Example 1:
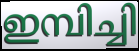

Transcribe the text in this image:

ഇമ്പിച്ചി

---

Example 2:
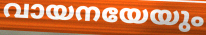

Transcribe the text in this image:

വായനയേയും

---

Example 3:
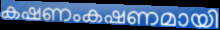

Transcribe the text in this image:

കഷണംകഷണമായി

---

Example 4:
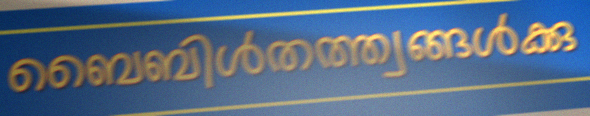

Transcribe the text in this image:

ബൈബിൾതത്ത്വങ്ങൾക്കു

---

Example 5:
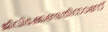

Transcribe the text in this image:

ജീവിക്കേണ്ടതിനാണ്